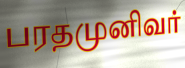
பரதமுனிவர்